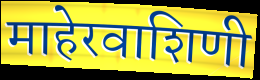
माहेरवाशिणी